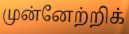
முன்னேற்றிக்